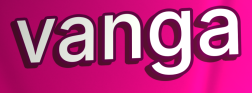
vanga